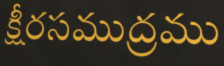
క్షీరసముద్రము